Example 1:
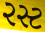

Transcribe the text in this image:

રસ્ટ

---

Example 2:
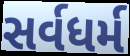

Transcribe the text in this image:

સર્વધર્મ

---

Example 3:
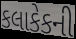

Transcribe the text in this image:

કલાકેકની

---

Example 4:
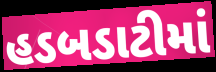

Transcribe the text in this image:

હડબડાટીમાં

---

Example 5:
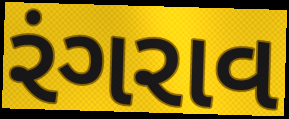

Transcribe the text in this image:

રંગરાવ